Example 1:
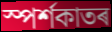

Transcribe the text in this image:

স্পৰ্শকাতৰ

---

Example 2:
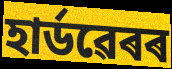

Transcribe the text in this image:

হাৰ্ডৱেৰৰ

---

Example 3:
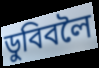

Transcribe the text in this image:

ডুবিবলৈ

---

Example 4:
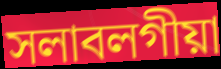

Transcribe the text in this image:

সলাবলগীয়া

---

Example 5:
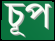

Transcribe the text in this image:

চূপ